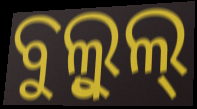
ବୁଲ୍ବୁଲ୍